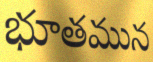
భూతమున